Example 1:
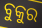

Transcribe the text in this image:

ବୁକୁର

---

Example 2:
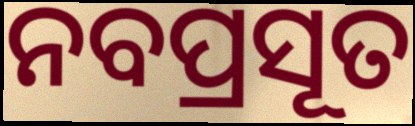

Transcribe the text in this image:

ନବପ୍ରସୂତ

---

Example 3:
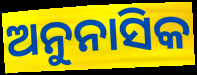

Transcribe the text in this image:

ଅନୁନାସିକ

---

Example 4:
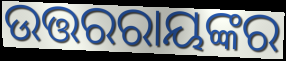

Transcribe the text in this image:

ଉତ୍ତରରାୟଙ୍କର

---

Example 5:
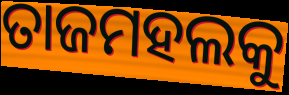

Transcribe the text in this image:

ତାଜମହଲକୁ